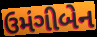
ઉમંગીબેન